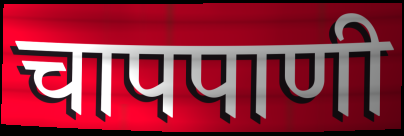
चापपाणी